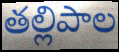
తల్లిపాల